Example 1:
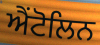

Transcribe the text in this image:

ਐਂਟੋਲਿਨ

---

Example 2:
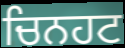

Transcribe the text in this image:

ਚਿਨਹਟ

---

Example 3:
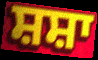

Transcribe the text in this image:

ਸ਼ਸ਼ਾ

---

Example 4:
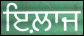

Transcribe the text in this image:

ਇਲ਼ਾਜ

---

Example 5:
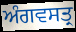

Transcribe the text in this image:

ਅੰਗਵਸਤ੍ਰ